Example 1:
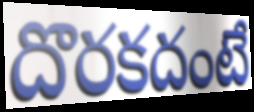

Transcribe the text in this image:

దొరకదంటే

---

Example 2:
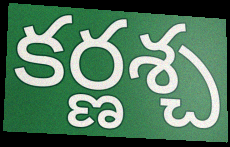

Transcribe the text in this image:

కర్ణశ్చ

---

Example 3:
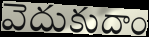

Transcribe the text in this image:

వెదుకుదాం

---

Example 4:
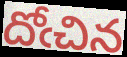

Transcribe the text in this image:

దోఁచిన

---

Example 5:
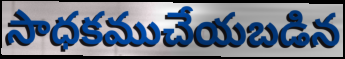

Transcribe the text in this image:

సాధకముచేయబడిన